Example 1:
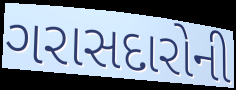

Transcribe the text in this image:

ગરાસદારોની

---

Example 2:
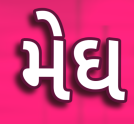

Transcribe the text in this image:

મેઘ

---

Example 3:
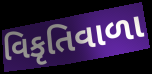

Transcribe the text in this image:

વિકૃતિવાળા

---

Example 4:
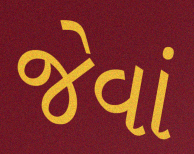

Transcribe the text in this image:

જેવાં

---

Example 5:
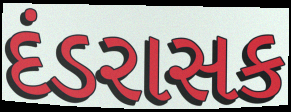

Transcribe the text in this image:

દંડરાસક